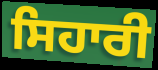
ਸਿਹਾਰੀ